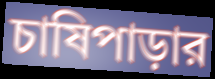
চাষিপাড়ার